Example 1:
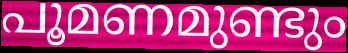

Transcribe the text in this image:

പൂമണമുണ്ടും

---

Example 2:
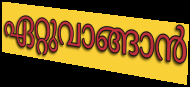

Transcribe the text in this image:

ഏറ്റുവാങ്ങാൻ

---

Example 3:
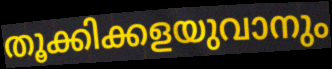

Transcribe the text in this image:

തൂക്കിക്കളയുവാനും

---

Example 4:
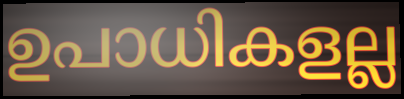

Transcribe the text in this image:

ഉപാധികളല്ല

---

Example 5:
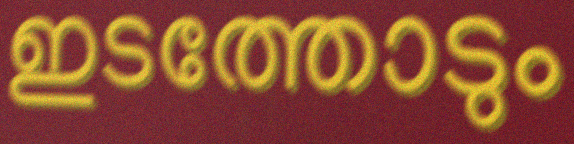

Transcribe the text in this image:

ഇടത്തോടും